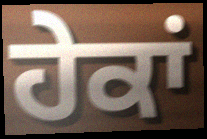
ਹੇਕਾਂ